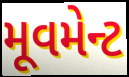
મૂવમેન્ટ